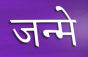
जन्मे